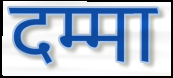
दम्मा